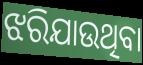
ଝରିଯାଉଥିବା